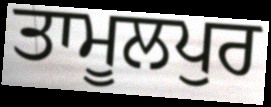
ਤਾਮੂਲਪੁਰ